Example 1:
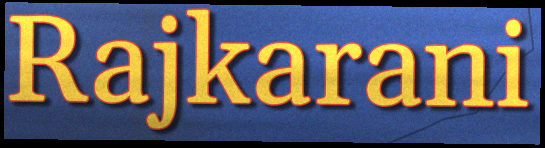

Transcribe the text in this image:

Rajkarani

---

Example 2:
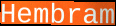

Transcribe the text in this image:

Hembram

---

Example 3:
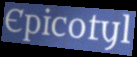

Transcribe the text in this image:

Epicotyl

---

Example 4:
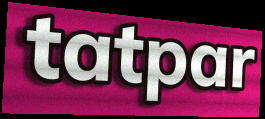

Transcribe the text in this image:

tatpar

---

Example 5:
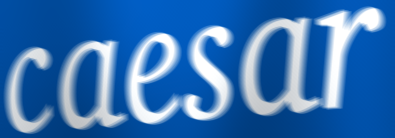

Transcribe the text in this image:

caesar